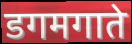
डगमगाते